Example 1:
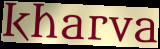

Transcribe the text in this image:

kharva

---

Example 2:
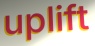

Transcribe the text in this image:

uplift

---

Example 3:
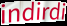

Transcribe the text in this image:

indirdi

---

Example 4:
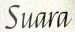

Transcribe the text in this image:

Suara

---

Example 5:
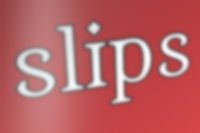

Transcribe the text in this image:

slips